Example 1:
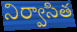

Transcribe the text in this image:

నిర్వాసిత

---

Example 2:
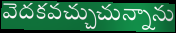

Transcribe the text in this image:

వెదకవచ్చుచున్నాను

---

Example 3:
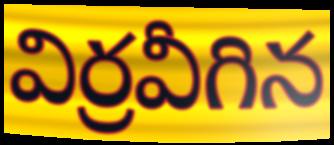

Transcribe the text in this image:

విర్రవీగిన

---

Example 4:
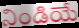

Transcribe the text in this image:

నిండియే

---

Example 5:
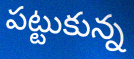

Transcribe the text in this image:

పట్టుకున్న